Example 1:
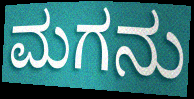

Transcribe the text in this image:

ಮಗನು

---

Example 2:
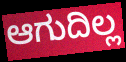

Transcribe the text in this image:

ಆಗುದಿಲ್ಲ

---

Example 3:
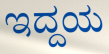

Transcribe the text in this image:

ಇದ್ದಯ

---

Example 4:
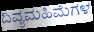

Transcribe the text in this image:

ದಿವ್ಯಮಹಿಮೆಗಳ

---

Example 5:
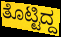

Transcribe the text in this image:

ತೊಟ್ಟಿದ್ದ